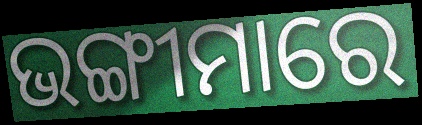
ଭଙ୍ଗୀମାରେ